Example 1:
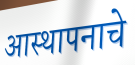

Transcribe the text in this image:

आस्थापनाचे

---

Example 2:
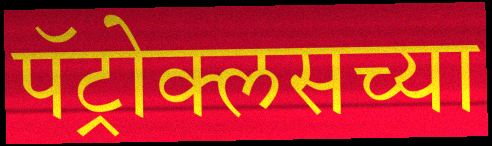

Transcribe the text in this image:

पॅट्रोक्लसच्या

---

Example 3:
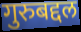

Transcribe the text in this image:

गुरुबद्दल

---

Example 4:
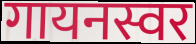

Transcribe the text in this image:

गायनस्वर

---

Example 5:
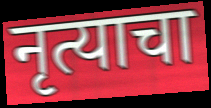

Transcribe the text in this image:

नृत्याचा